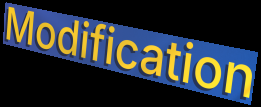
Modification